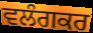
ਵਲੰਗਕਰ